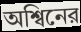
অশ্বিনের